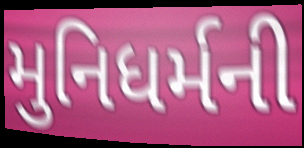
મુનિધર્મની